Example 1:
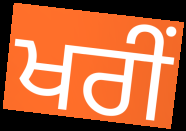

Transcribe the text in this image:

ਖਰੀਂ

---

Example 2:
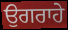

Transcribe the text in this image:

ਉਗਰਾਹੇ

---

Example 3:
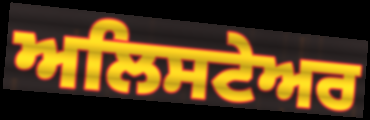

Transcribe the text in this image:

ਅਲਿਸਟੇਅਰ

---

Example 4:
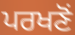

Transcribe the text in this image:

ਪਰਖਣੋਂ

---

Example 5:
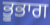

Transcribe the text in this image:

ਭੂਭਾਗ